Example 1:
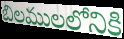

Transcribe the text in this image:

బిలములలోనికి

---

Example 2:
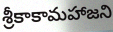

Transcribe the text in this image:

శ్రీకాకామహాజని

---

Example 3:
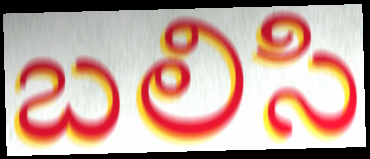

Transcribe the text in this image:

బలిసి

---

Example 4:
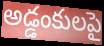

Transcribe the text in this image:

అడ్డంకులపై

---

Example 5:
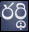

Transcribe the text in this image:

రర్థి